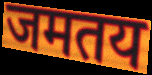
जमतय